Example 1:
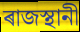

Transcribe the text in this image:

ৰাজস্থানী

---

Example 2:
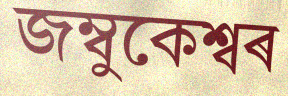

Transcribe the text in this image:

জম্বুকেশ্বৰ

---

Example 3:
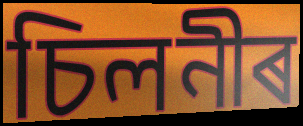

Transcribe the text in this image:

চিলনীৰ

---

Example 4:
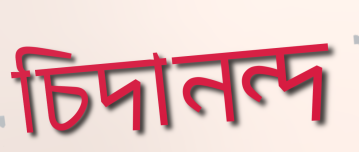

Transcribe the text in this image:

চিদানন্দ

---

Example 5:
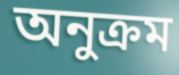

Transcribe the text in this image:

অনুক্ৰম